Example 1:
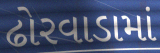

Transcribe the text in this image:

ઢોરવાડામાં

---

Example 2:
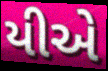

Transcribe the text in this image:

યીએ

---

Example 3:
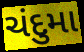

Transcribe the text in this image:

ચંદુમા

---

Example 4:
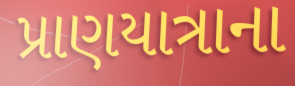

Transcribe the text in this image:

પ્રાણયાત્રાના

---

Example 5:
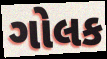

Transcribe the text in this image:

ગોલક